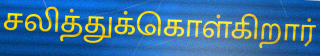
சலித்துக்கொள்கிறார்